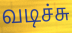
வடிச்சு